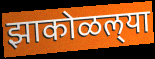
झाकोळल्या